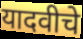
यादवीचे